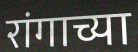
रांगाच्या